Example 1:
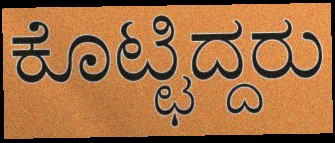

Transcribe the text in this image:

ಕೊಟ್ಟಿದ್ದರು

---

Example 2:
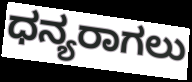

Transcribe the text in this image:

ಧನ್ಯರಾಗಲು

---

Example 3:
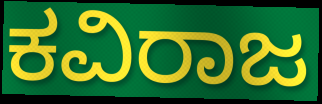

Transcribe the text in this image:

ಕವಿರಾಜ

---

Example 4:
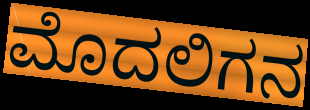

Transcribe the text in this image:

ಮೊದಲಿಗನ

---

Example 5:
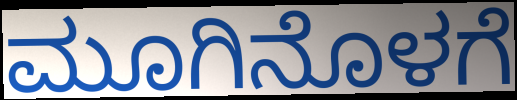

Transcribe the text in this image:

ಮೂಗಿನೊಳಗೆ